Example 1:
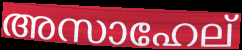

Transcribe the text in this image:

അസാഹേല്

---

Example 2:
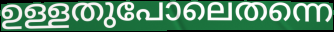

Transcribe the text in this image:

ഉള്ളതുപോലെതന്നെ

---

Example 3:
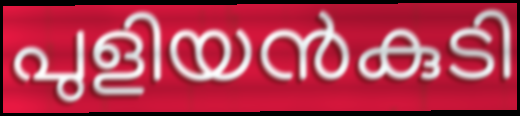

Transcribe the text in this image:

പുളിയൻകുടി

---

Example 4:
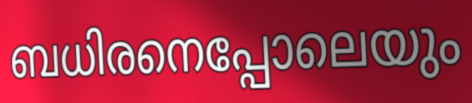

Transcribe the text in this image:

ബധിരനെപ്പോലെയും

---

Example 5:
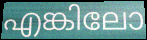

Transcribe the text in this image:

എങ്കിലോ